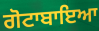
ਗੋਟਾਬਾਇਆ